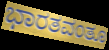
ಭಾರತವಂತೂ